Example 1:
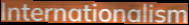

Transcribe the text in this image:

Internationalism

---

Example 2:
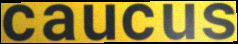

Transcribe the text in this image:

caucus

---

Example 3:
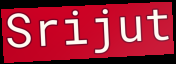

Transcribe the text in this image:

Srijut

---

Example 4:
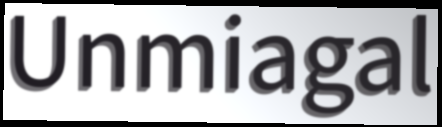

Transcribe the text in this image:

Unmiagal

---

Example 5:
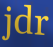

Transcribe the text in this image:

jdr